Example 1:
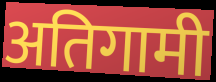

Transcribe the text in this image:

अतिगामी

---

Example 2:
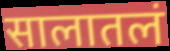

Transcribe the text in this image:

सालातलं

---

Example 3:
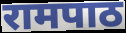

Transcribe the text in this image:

रामपाठ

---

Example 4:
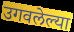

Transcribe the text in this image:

उगवलेल्या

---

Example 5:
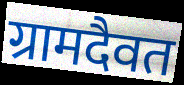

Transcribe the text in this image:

ग्रामदैवत